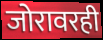
जोरावरही